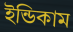
ইন্ডিকাম